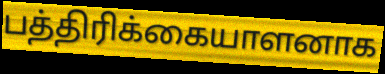
பத்திரிக்கையாளனாக